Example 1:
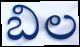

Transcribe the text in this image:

బిల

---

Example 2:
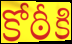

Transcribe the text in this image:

కోఠీకి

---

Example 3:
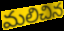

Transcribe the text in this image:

మలిచిన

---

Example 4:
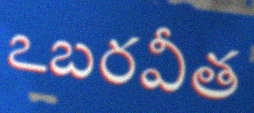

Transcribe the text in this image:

ఽబరవీత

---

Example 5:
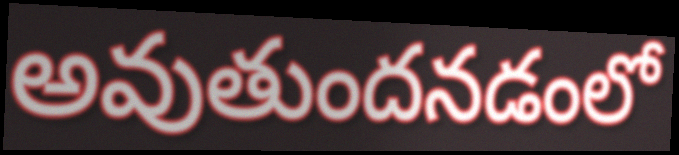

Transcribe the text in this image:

అవుతుందనడంలో